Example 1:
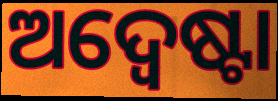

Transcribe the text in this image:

ଅଦ୍ୱେଷ୍ଟା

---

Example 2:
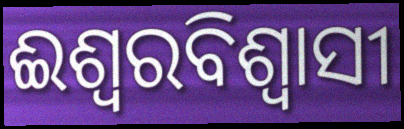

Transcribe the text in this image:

ଈଶ୍ବରବିଶ୍ବାସୀ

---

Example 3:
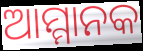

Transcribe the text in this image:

ଆମ୍ମାନକ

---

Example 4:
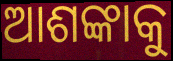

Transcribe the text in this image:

ଆଶଙ୍କାକୁ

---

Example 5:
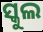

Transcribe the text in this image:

ସ୍କୁଲ